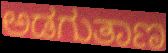
ಅಡಗುತಾಣ